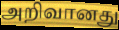
அறிவானது